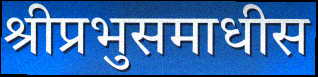
श्रीप्रभुसमाधीस